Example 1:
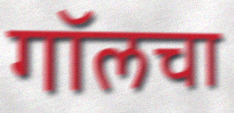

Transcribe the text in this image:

गॉलचा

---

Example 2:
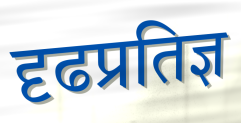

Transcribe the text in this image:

दृढप्रतिज्ञ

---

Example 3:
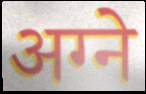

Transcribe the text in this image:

अग्ने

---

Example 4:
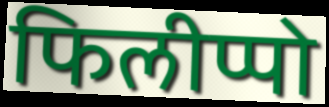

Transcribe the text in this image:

फिलीप्पो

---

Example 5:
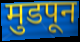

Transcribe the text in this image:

मुडपून